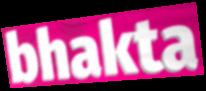
bhakta